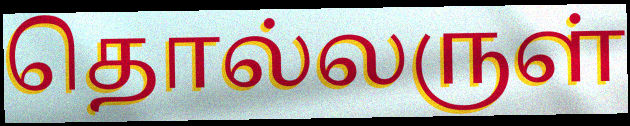
தொல்லருள்